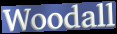
Woodall